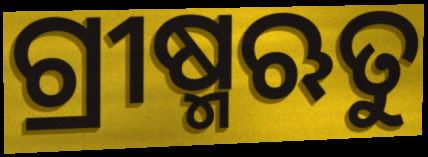
ଗ୍ରୀଷ୍ମଋତୁ